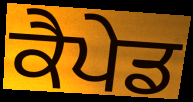
ਕੈਪੇਡ